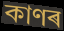
কাণৰ